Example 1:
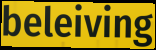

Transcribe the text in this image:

beleiving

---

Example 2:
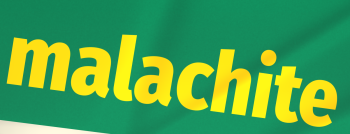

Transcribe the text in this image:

malachite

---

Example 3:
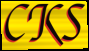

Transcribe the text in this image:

CKS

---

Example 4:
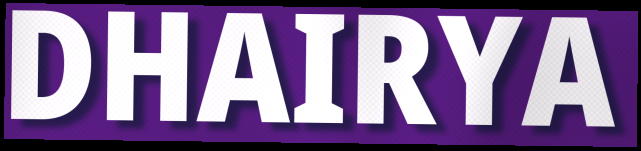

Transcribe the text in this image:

DHAIRYA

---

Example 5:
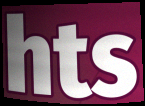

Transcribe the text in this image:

hts